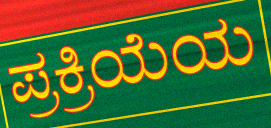
ಪ್ರಕ್ರಿಯೆಯ